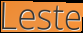
Leste